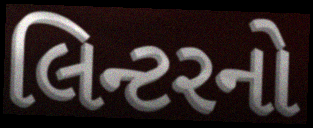
લિન્ટરનો